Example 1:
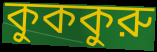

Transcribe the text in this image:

কুককুরু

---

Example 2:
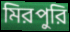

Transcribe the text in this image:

মিরপুরি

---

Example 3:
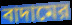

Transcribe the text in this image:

বাদামের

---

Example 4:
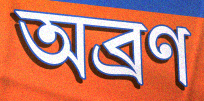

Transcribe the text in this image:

অব্রণ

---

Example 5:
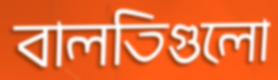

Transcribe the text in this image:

বালতিগুলো